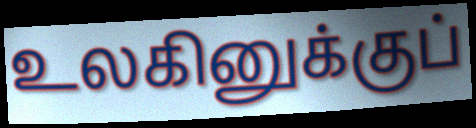
உலகினுக்குப்